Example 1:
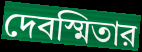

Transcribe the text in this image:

দেবস্মিতার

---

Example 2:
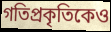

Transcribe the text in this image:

গতিপ্রকৃতিকেও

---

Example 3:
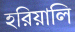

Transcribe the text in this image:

হরিয়ালি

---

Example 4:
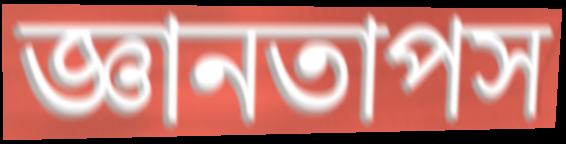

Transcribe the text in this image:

জ্ঞানতাপস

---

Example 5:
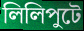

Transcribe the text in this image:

লিলিপুটে